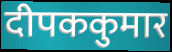
दीपककुमार